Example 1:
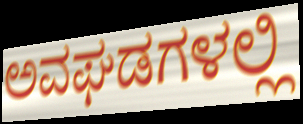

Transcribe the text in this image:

ಅವಘಡಗಳಲ್ಲಿ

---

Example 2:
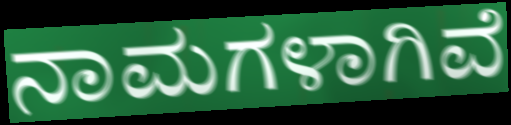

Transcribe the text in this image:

ನಾಮಗಳಾಗಿವೆ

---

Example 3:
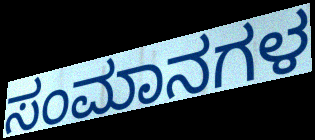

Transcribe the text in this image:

ಸಂಮಾನಗಳ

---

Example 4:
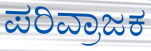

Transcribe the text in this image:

ಪರಿವ್ರಾಜಕ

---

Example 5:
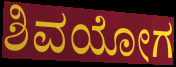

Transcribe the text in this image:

ಶಿವಯೋಗ